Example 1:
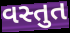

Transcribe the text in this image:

વસ્તુત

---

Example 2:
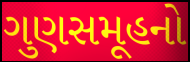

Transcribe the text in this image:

ગુણસમૂહનો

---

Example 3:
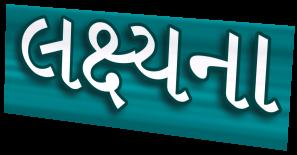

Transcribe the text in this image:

લક્ષ્યના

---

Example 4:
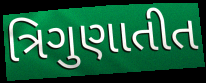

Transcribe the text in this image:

ત્રિગુણાતીત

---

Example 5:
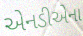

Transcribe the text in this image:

એનડીએના